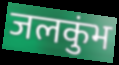
जलकुंभ